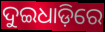
ଦୁଇଧାଡ଼ିରେ